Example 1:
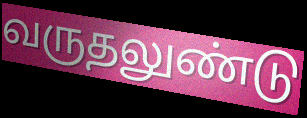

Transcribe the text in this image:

வருதலுண்டு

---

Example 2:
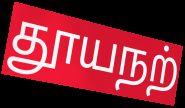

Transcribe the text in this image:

தூயநற்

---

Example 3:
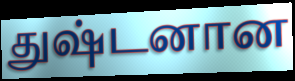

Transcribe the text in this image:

துஷ்டனான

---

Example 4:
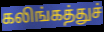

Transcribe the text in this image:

கலிங்கத்துச்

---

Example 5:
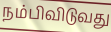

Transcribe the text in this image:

நம்பிவிடுவது